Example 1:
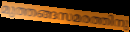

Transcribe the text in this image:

മുത്തങ്ങസമരത്തിനു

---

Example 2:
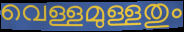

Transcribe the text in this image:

വെള്ളമുള്ളതും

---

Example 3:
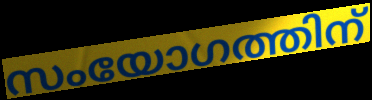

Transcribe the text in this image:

സംയോഗത്തിന്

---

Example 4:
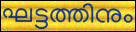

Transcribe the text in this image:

ഘട്ടത്തിനും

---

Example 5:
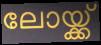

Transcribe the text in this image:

ലോയ്ക്ക്